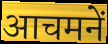
आचमनें